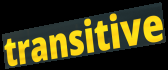
transitive